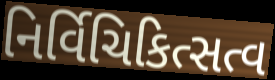
નિર્વિચિકિત્સત્વ